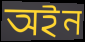
অইন